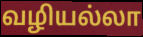
வழியல்லா